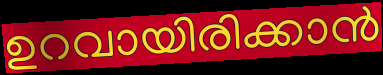
ഉറവായിരിക്കാൻ